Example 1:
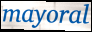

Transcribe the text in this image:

mayoral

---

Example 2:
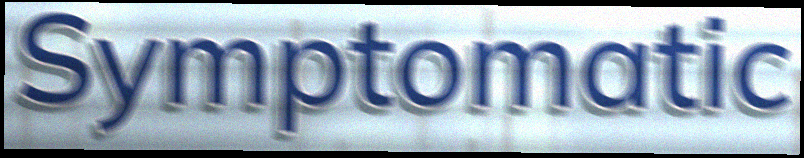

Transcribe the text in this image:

Symptomatic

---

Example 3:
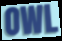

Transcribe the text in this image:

OWL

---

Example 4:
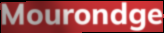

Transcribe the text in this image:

Mourondge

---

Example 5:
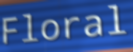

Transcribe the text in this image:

Floral